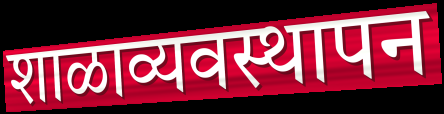
शाळाव्यवस्थापन